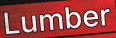
Lumber